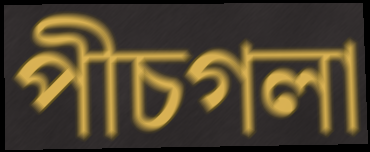
পীচগলা